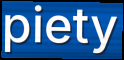
piety